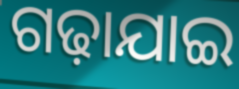
ଗଢ଼ାଯାଇ